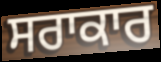
ਸਰਾਕਾਰ